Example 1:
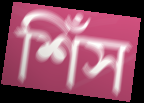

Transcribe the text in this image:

শিঁস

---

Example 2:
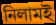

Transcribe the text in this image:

নিলামই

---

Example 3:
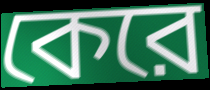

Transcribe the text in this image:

কেরে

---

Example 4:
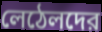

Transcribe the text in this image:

লেঠেলদের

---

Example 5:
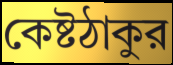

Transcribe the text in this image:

কেষ্টঠাকুর